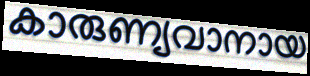
കാരുണ്യവാനായ